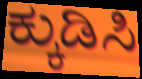
ಕ್ಕುಡಿಸಿ